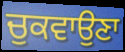
ਚੁਕਵਾਉਣਾ